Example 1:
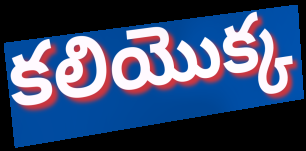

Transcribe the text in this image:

కలియొక్క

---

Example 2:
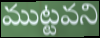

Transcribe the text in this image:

ముట్టవని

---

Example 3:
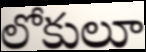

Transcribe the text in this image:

లోకులూ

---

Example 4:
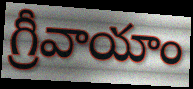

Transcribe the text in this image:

గ్రీవాయాం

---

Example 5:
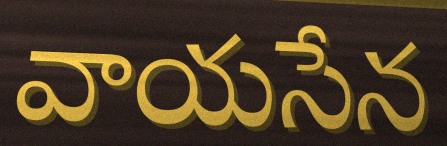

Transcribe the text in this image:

వాయసేన